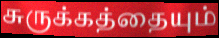
சுருக்கத்தையும்